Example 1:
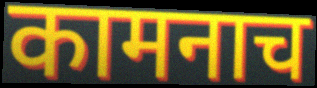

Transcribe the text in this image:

कामनाच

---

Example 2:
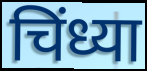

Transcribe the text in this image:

चिंध्या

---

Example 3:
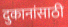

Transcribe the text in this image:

दुकानांसाठी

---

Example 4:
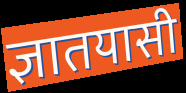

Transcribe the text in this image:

ज्ञातयासी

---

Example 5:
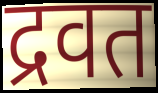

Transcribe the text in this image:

द्रवत